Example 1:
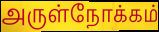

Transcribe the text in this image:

அருள்நோக்கம்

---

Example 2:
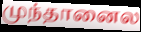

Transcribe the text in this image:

முந்தானைல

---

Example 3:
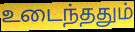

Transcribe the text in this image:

உடைந்ததும்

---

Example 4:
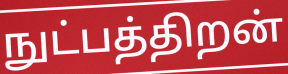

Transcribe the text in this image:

நுட்பத்திறன்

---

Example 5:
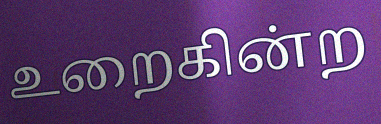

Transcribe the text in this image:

உறைகின்ற